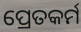
ପ୍ରେତକର୍ମ